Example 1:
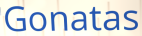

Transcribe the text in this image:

Gonatas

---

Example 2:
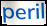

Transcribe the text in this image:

peril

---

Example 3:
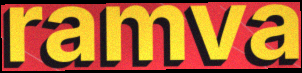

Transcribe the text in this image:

ramva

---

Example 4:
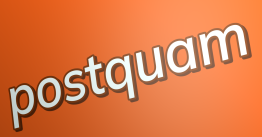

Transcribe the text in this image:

postquam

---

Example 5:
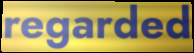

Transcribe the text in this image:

regarded